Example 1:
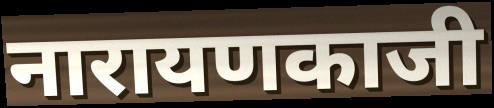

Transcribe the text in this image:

नारायणकाजी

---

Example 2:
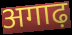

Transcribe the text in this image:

अगाढ़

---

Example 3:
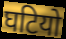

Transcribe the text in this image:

घटियो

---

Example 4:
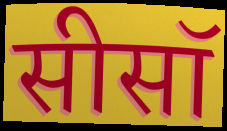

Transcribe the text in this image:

सीसॉ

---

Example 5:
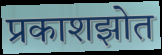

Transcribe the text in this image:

प्रकाशझोत